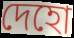
দেহো